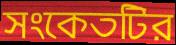
সংকেতটির